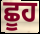
ਛੂਹ